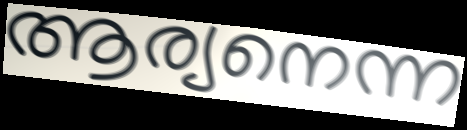
ആര്യനെന്ന